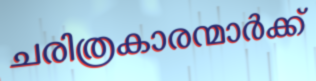
ചരിത്രകാരന്മാർക്ക്